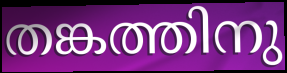
തങ്കത്തിനു